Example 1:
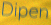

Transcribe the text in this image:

Dipen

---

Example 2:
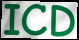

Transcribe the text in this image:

ICD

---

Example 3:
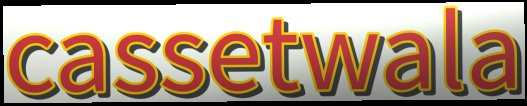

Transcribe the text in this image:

cassetwala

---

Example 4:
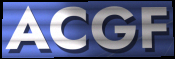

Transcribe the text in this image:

ACGF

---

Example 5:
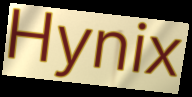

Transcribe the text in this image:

Hynix